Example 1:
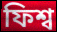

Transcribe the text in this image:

ফিশ্ব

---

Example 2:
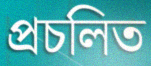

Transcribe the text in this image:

প্ৰচলিত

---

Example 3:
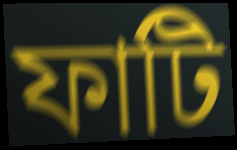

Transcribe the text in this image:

ফাটি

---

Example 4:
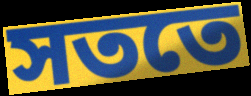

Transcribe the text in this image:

সততে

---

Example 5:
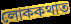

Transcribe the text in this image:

লোককথাত